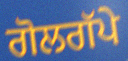
ਗੋਲਗੱਪੇ